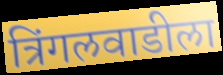
त्रिंगलवाडीला